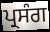
ਪ੍ਰਸੰਗ